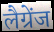
लैग्रेंज